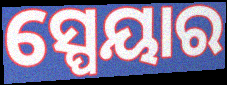
ସ୍ପେୟାର